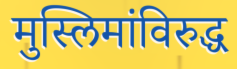
मुस्लिमांविरुद्ध